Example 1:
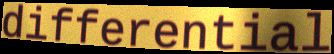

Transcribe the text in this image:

differential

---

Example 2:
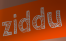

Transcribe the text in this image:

ziddu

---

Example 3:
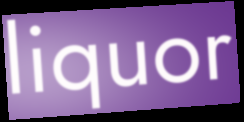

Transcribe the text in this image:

liquor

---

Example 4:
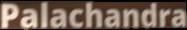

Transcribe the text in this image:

Palachandra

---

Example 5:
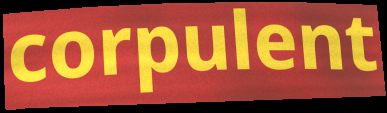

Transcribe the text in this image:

corpulent